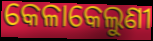
କେଳାକେଲୁଣୀ